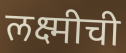
लक्ष्मीची